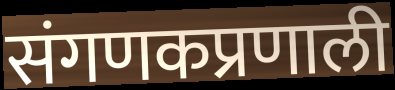
संगणकप्रणाली